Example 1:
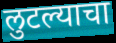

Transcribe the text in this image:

लुटल्याचा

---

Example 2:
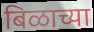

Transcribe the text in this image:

बिळाच्या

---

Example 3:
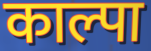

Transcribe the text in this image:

काल्पा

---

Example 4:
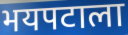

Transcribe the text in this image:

भयपटाला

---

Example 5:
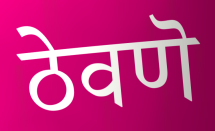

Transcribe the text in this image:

ठेवणॆ